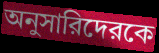
অনুসারিদেরকে